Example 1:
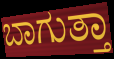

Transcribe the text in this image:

ಬಾಗುತ್ತಾ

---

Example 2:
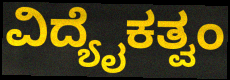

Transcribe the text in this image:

ವಿದ್ಯೈಕತ್ವಂ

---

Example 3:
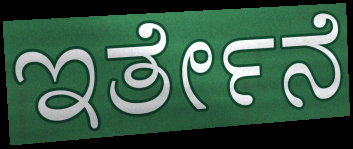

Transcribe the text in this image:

ಇರ್ತೇನೆ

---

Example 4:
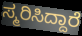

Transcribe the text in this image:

ಸ್ಮರಿಸಿದ್ದಾರೆ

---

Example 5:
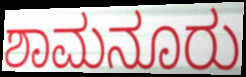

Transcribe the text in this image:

ಶಾಮನೂರು